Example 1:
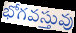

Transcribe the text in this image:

భోగవస్తువు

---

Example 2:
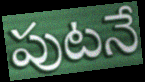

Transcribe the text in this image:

పుటనే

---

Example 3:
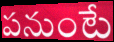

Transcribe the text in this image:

పనుంటే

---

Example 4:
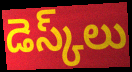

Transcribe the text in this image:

డెస్క్‌లు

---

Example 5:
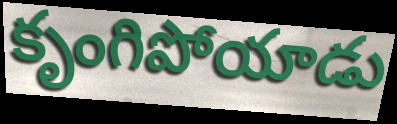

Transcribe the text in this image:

కృంగిపోయాడు